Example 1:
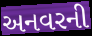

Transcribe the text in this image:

અનવરની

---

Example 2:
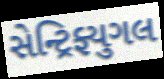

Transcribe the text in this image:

સેન્ટ્રિફ્યુગલ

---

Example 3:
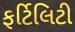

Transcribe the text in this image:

ફર્ટિલિટી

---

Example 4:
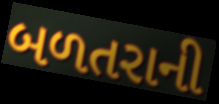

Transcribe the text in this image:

બળતરાની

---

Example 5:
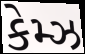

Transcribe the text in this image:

કેમ્ઝ